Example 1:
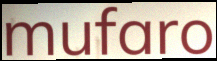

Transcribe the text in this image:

mufaro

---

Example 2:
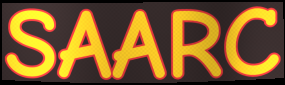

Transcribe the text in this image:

SAARC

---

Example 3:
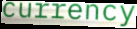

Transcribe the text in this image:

currency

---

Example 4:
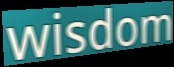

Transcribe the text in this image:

wisdom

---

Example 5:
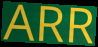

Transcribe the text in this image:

ARR